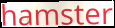
hamster